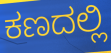
ಕಣದಲ್ಲಿ